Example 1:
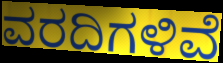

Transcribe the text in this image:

ವರದಿಗಳಿವೆ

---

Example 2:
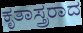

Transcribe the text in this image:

ಕೃತಾಸ್ತ್ರರಾದ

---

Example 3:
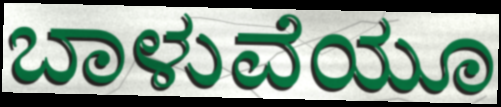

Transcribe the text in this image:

ಬಾಳುವೆಯೂ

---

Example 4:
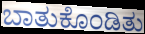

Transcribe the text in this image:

ಬಾತುಕೊಂಡಿತು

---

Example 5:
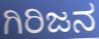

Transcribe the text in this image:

ಗಿರಿಜನ